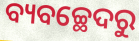
ବ୍ୟବଚ୍ଛେଦରୁ